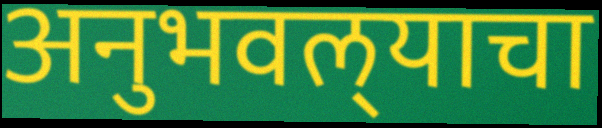
अनुभवल्याचा